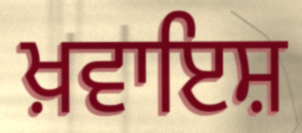
ਖ਼ਵਾਇਸ਼